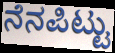
ನೆನಪಿಟ್ಟು